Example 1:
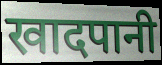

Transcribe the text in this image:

खादपानी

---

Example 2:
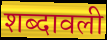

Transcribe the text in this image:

शब्दावली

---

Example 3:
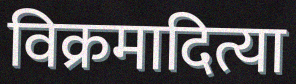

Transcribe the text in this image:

विक्रमादित्या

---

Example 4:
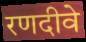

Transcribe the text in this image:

रणदीवे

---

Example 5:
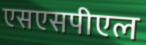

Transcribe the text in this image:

एसएसपीएल